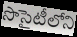
సొసైటీలోని